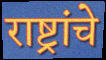
राष्ट्रांचे